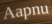
Aapnu